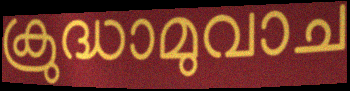
ക്രുദ്ധാമുവാച